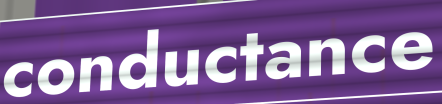
conductance